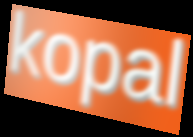
kopal